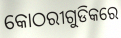
କୋଠରୀଗୁଡିକରେ